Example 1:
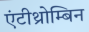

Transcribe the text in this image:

एंटीथ्रोम्बिन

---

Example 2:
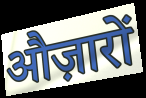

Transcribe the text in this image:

औज़ारों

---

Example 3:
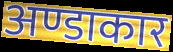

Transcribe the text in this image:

अण्डाकार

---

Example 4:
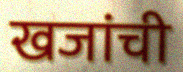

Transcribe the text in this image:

खजांची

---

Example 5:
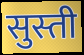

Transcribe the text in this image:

सुस्‍ती